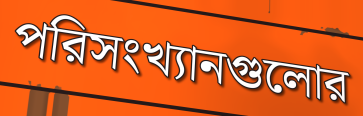
পরিসংখ্যানগুলোর